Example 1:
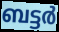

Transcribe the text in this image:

ബട്ടർ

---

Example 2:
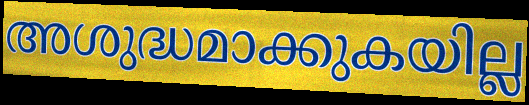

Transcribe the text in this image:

അശുദ്ധമാക്കുകയില്ല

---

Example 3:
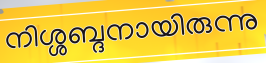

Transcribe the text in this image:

നിശ്ശബ്ദനായിരുന്നു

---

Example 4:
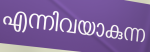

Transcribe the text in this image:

എന്നിവയാകുന്ന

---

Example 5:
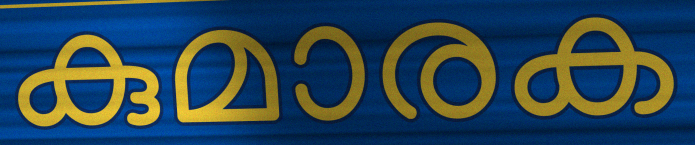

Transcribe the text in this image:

കുമാരക